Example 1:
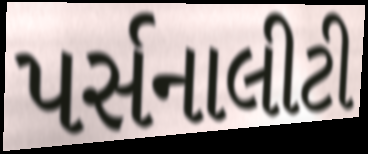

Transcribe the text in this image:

પર્સનાલીટી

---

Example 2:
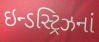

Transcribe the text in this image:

ઇન્ડસ્ટ્રિઝનાં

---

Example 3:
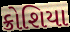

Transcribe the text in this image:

ક્રોશિયા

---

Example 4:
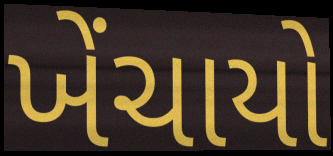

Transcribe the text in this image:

ખેંચાયો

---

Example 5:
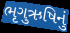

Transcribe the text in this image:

ભૃગુઋષિનું